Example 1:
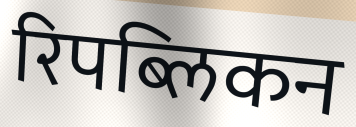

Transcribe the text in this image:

रिपब्लिकन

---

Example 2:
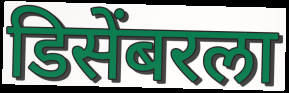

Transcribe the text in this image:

डिसेंबरला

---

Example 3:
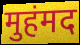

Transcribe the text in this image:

मुहंमद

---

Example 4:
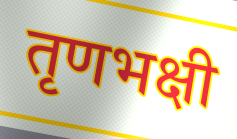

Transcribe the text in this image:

तृणभक्षी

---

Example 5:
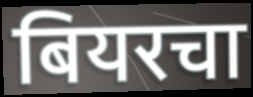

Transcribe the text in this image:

बियरचा